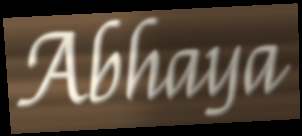
Abhaya